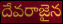
దేవరాజైన